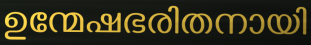
ഉന്മേഷഭരിതനായി